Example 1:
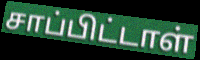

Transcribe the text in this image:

சாப்பிட்டாள்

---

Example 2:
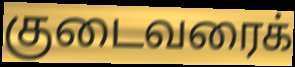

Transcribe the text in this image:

குடைவரைக்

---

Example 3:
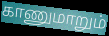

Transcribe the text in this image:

காணுமாறும்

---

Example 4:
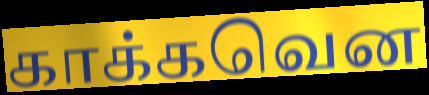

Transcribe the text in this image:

காக்கவென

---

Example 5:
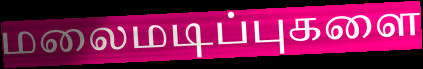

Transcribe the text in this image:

மலைமடிப்புகளை